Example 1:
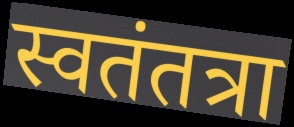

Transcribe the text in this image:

स्वतंतत्रा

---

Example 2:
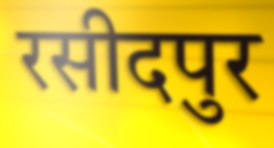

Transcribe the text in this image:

रसीदपुर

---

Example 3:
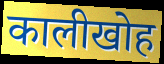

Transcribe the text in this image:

कालीखोह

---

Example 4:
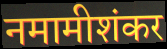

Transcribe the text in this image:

नमामीशंकर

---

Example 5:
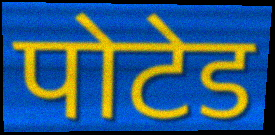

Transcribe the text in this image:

पोटेड